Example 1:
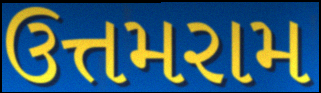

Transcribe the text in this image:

ઉત્તમરામ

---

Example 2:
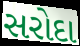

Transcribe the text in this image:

સરોદા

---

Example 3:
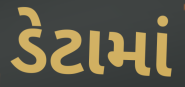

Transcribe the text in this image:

ડેટામાં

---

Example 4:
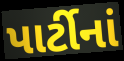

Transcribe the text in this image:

પાર્ટીનાં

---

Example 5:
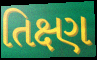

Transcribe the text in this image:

તિક્ષ્ણ